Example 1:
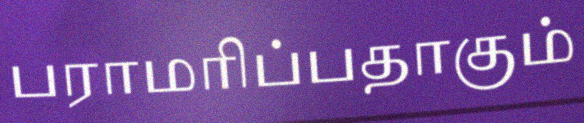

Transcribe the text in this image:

பராமரிப்பதாகும்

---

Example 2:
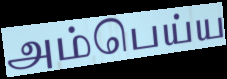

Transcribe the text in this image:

அம்பெய்ய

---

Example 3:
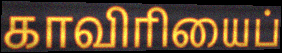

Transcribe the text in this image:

காவிரியைப்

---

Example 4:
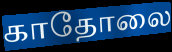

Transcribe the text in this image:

காதோலை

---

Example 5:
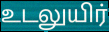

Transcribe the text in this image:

உடலுயிர்